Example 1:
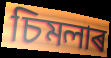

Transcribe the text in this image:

চিমলাৰ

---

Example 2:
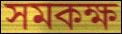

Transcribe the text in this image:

সমকক্ষ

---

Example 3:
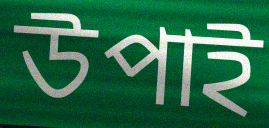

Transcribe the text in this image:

উপাই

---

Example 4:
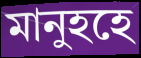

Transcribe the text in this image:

মানুহহে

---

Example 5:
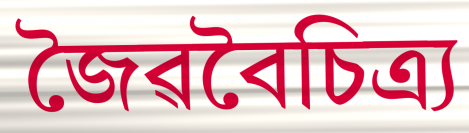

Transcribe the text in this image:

জৈৱবৈচিত্ৰ্য